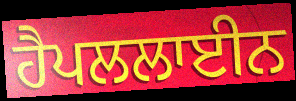
ਹੈਪਲਲਾਈਨ